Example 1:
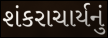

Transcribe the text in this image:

શંકરાચાર્યનું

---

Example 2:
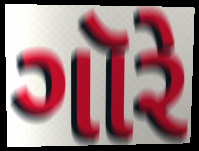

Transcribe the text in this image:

ગૉરે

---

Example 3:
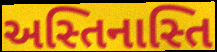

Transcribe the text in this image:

અસ્તિનાસ્તિ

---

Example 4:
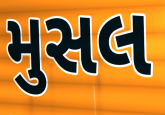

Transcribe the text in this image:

મુસલ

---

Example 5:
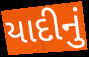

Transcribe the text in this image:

યાદીનું